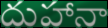
దుహానా